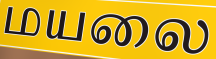
மயலை